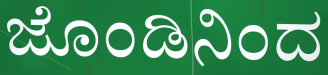
ಜೊಂಡಿನಿಂದ